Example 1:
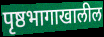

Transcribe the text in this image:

पृष्ठभागाखालील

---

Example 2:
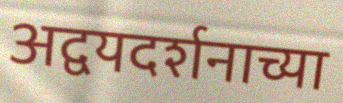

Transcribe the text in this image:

अद्वयदर्शनाच्या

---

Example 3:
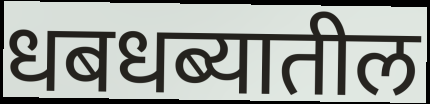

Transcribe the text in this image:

धबधब्यातील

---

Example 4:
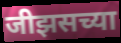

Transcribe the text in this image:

जीझसच्या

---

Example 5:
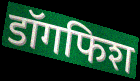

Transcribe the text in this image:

डॉगफिश